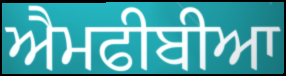
ਐਮਫੀਬੀਆ